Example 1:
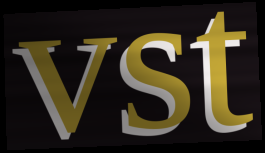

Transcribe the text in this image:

vst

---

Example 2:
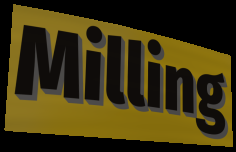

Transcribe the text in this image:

Milling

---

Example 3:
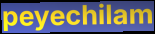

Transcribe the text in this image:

peyechilam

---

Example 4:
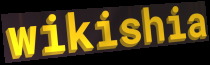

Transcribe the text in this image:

wikishia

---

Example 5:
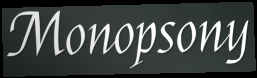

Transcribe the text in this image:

Monopsony